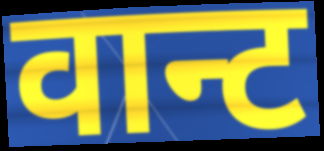
वान्ट